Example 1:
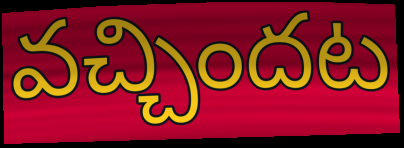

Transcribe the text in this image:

వచ్చిందట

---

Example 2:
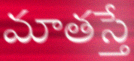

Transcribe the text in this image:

మాతస్తే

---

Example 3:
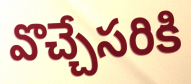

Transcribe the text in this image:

వొచ్చేసరికి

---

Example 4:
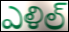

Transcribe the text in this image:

ఎళిల్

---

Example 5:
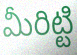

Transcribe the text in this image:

మీరిట్టి